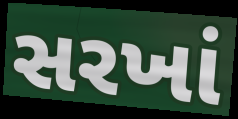
સરખાં